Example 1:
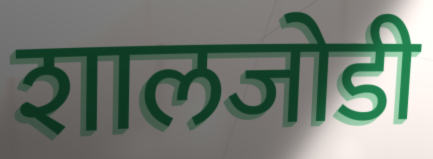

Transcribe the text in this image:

शालजोडी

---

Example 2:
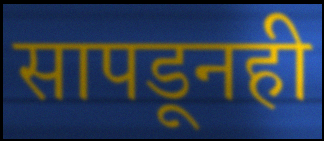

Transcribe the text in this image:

सापडूनही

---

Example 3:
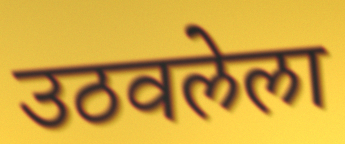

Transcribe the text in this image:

उठवलेला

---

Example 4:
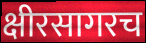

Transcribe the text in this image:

क्षीरसागरच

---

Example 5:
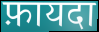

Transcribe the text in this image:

फ़ायदा